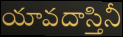
యావదాస్తినీ